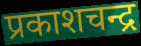
प्रकाशचन्द्र